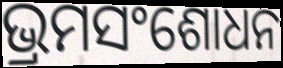
ଭ୍ରମସଂଶୋଧନ